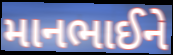
માનભાઈને